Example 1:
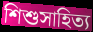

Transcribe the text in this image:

শিশুসাহিত্য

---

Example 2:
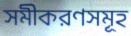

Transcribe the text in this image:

সমীকরণসমূহ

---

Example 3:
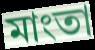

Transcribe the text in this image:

মাংতা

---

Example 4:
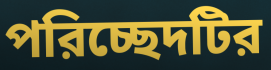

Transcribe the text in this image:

পরিচ্ছেদটির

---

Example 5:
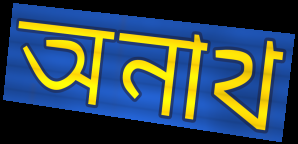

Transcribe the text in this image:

অনাথ